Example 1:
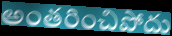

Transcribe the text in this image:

అంతరించిపోదు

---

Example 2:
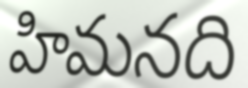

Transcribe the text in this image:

హిమనది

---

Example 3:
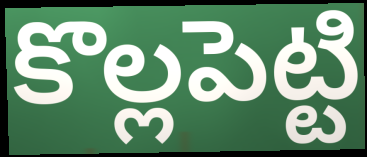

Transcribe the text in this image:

కొల్లపెట్టి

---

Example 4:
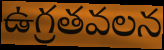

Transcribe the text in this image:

ఉగ్రతవలన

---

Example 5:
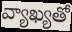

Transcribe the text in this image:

వ్యాఖ్యతో